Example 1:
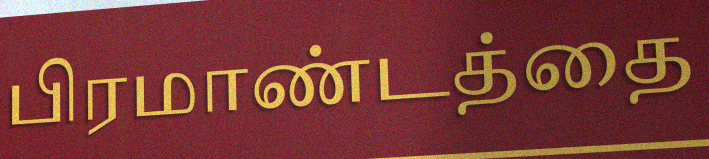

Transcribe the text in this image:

பிரமாண்டத்தை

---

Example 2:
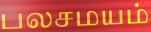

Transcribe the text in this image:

பலசமயம்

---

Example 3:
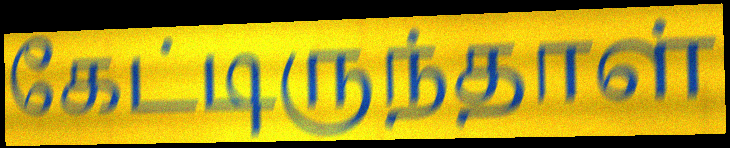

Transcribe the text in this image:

கேட்டிருந்தாள்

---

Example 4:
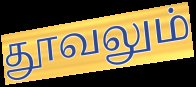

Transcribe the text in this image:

தூவலும்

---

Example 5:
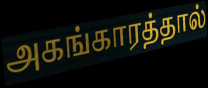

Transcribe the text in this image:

அகங்காரத்தால்